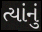
ત્યાંનું